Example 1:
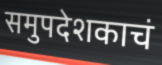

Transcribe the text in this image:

समुपदेशकाचं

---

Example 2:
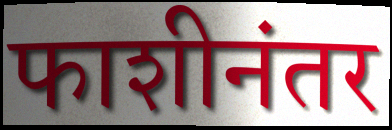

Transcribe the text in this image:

फाशीनंतर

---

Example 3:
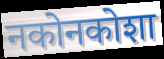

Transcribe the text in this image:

नकोनकोशा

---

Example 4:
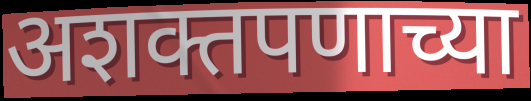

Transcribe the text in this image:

अशक्तपणाच्या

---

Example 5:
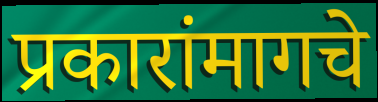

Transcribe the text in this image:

प्रकारांमागचे